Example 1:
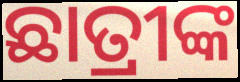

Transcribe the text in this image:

ଛାତ୍ରୀଙ୍କ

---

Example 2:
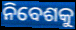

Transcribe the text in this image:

ନିବେଶକୁ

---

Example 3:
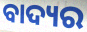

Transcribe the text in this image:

ବାଦ୍ୟର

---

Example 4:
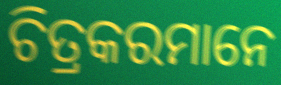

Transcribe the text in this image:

ଚିତ୍ରକରମାନେ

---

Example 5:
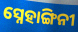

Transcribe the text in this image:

ସ୍ନେହାଙ୍ଗିନୀ